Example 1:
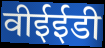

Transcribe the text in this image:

वीईईडी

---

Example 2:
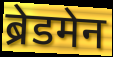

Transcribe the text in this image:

ब्रेडमेन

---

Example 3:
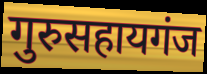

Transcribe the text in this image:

गुरुसहायगंज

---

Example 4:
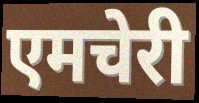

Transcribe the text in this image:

एमचेरी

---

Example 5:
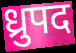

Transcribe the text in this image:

ध्रुपद